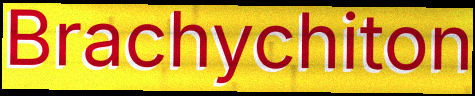
Brachychiton